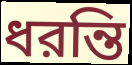
ধরন্তি